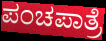
ಪಂಚಪಾತ್ರೆ